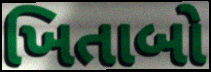
ખિતાબો